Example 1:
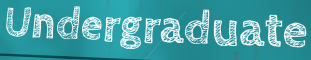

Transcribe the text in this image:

Undergraduate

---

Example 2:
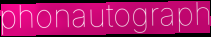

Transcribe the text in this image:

phonautograph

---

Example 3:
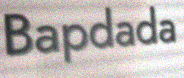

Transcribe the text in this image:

Bapdada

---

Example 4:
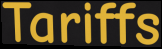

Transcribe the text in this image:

Tariffs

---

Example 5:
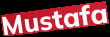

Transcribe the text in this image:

Mustafa